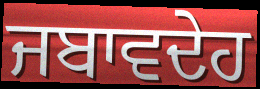
ਜਬਾਵਦੇਹ